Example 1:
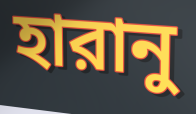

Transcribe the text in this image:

হারানু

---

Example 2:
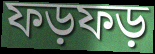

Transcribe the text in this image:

ফড়ফড়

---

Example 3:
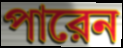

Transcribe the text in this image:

পারেন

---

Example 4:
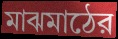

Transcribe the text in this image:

মাঝমাঠের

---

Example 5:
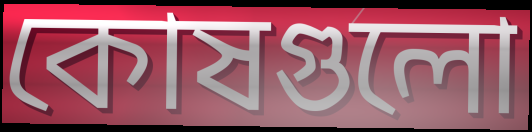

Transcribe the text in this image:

কোষগুলো